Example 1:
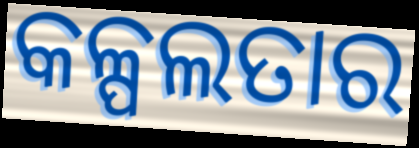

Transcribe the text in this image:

କଳ୍ପଲତାର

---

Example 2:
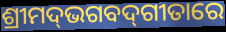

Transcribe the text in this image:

ଶ୍ରୀମଦ୍‌ଭଗବଦ୍‌ଗୀତାରେ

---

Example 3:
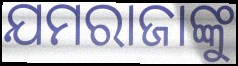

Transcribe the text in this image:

ଯମରାଜାଙ୍କୁ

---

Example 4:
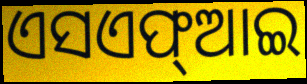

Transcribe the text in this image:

ଏସଏଫ୍ଆଇ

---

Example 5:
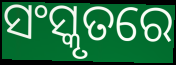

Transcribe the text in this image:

ସଂସ୍କୃତରେ